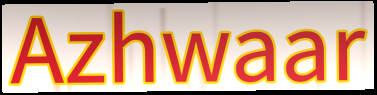
Azhwaar